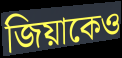
জিয়াকেও